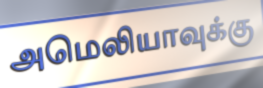
அமெலியாவுக்கு